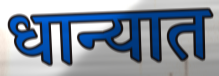
धान्यात